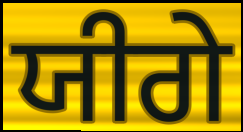
ਯੀਗੇ